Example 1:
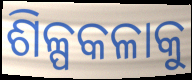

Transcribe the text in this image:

ଶିଳ୍ପକଳାକୁ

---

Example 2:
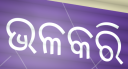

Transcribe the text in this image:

ଭଳକରି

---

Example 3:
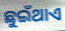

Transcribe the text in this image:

ଛୁଇଁଥାଏ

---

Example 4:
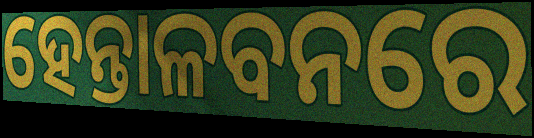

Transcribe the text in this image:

ହେନ୍ତାଳବନରେ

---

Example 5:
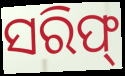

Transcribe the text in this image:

ସରିଫ୍